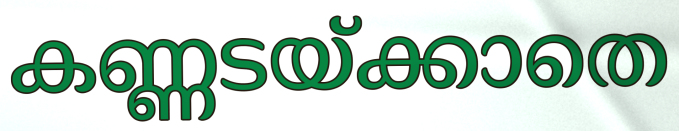
കണ്ണടയ്ക്കാതെ